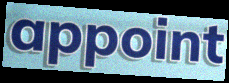
appoint